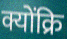
क्योंक्रि